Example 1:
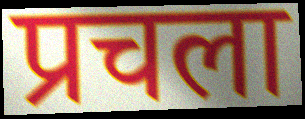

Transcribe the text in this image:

प्रचला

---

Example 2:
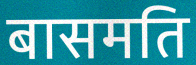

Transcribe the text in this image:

बासमति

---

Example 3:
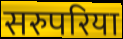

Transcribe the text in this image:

सरुपरिया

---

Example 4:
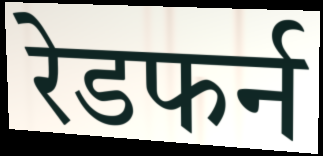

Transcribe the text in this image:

रेडफर्न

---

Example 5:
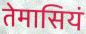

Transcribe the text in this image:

तेमासियं